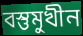
বস্তুমুখীন